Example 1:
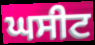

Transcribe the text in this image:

ਘਸੀਟ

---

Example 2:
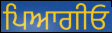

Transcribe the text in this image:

ਪਿਆਗੀਓ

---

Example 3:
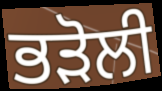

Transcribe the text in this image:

ਭੜੋਲੀ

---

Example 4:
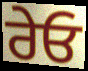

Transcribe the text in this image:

ਰੇਓ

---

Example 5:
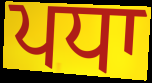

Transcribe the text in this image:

ਪਧਾ